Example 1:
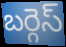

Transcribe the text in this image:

బర్గెస్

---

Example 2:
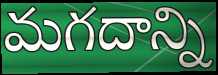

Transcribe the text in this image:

మగదాన్ని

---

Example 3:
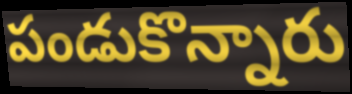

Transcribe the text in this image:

పండుకొన్నారు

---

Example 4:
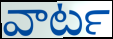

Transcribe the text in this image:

వాటర్‍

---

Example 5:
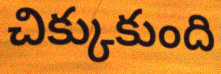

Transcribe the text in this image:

చిక్కుకుంది